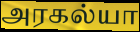
அரகல்யா